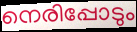
നെരിപ്പോടും